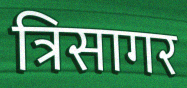
त्रिसागर